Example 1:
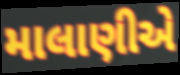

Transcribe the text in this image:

માલાણીએ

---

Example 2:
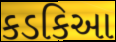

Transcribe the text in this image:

કડકિઆ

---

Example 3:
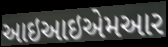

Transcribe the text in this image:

આઇઆઇએમઆર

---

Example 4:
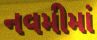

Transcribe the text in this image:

નવમીમાં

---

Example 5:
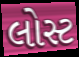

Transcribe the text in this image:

લોસ્ટ